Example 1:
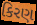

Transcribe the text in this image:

કિરણ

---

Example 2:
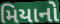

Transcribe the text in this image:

મિયાનો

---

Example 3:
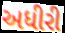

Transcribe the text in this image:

અધીરી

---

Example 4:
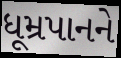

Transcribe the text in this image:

ધૂમ્રપાનને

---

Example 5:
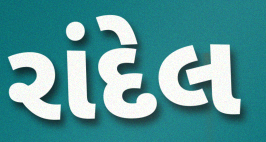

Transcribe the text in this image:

રાંદેલ